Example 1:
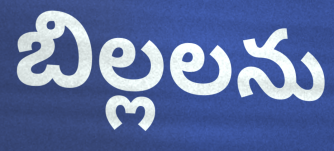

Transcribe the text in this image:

బిల్లలను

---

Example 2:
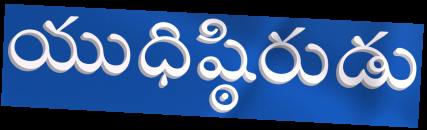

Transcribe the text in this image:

యుధిష్ఠిరుడు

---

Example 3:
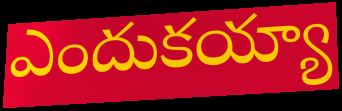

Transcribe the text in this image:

ఎందుకయ్యా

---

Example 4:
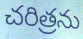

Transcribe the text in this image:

చరిత్రను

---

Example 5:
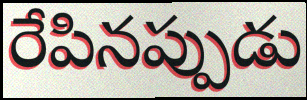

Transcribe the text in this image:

రేపినప్పుడు